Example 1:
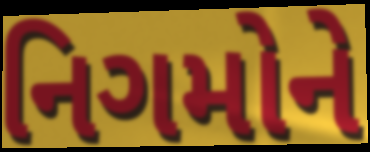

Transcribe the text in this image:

નિગમોને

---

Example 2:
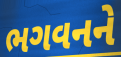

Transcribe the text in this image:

ભગવનને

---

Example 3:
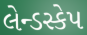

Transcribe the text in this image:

લેન્ડસ્કેપ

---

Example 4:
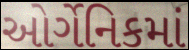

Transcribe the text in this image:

ઓર્ગેનિકમાં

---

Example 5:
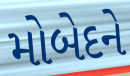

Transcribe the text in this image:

મોબેદને